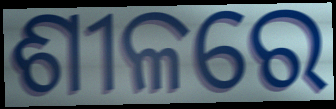
ଶୀଳରେ